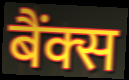
बैंक्‍स